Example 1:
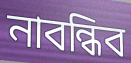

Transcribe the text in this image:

নাবন্ধিব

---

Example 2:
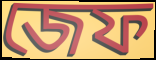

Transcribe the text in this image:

জেফ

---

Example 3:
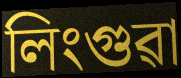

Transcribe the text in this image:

লিংগুৱা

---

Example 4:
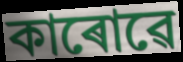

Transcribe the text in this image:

কাৰোৱে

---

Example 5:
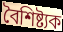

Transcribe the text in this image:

বৈশিষ্ট্যক